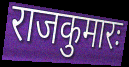
राजकुमारः